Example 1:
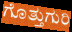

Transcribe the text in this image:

ಗೊತ್ತುಗುರಿ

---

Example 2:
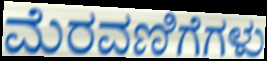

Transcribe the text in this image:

ಮೆರವಣಿಗೆಗಳು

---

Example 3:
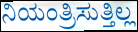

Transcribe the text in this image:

ನಿಯಂತ್ರಿಸುತ್ತಿಲ್ಲ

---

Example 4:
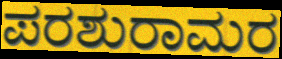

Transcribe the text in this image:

ಪರಶುರಾಮರ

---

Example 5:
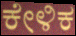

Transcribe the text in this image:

ಕೇಳಿಕ